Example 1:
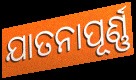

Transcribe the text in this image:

ଯାତନାପୂର୍ଣ୍ଣ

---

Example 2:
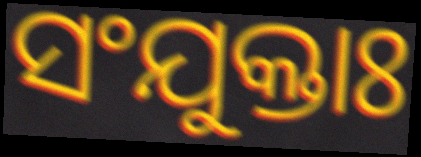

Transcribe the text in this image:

ସଂଯୁକ୍ତାଃ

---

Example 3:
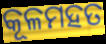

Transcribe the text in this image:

କୂଳମହତ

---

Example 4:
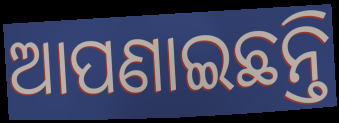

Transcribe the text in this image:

ଆପଣାଇଛନ୍ତି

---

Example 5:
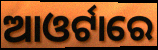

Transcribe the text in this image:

ଆଓର୍ଟାରେ